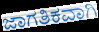
ಜಾಗತಿಕವಾಗಿ